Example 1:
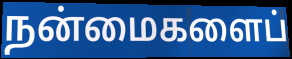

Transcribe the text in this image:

நன்மைகளைப்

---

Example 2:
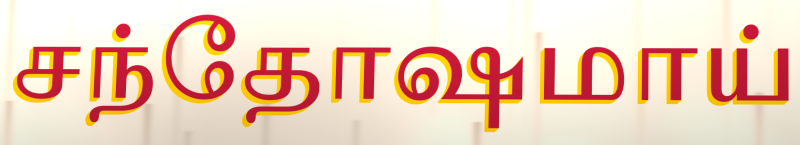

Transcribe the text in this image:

சந்தோஷமாய்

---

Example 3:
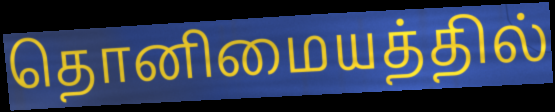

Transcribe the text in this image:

தொனிமையத்தில்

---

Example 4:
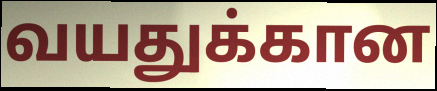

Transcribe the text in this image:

வயதுக்கான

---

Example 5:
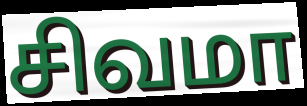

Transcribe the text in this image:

சிவமா